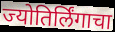
ज्योतिर्लिंगाचा